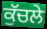
ਕੁੱਚਲੇ